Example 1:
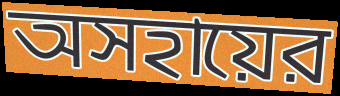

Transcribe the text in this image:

অসহায়ের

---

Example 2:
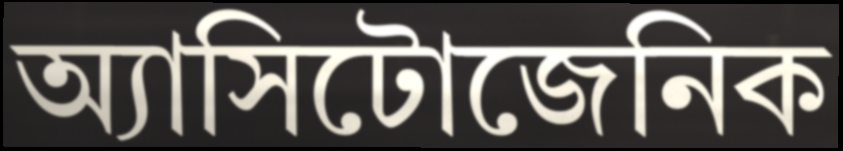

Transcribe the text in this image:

অ্যাসিটোজেনিক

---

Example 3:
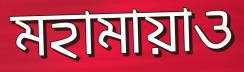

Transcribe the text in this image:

মহামায়াও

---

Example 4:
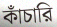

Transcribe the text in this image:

কাঁচারি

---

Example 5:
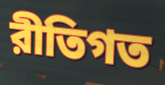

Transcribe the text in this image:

রীতিগত